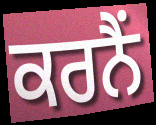
ਕਰਨੈਂ